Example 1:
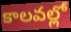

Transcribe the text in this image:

కాలవల్లో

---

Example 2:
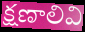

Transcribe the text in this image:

క్షణాలివి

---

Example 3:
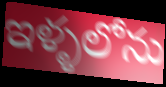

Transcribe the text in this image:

ఇళ్ళలోను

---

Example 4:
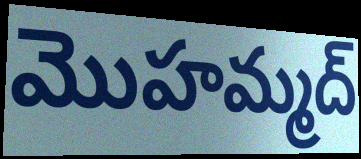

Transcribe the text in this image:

మొహమ్మద్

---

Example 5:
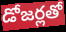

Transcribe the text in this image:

డోజర్లతో